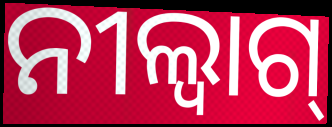
ନୀଲ୍ବାଗ୍